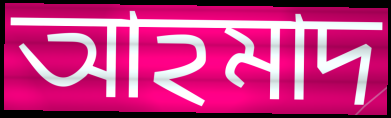
আহমাদ